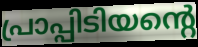
പ്രാപ്പിടിയന്റെ